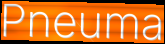
Pneuma